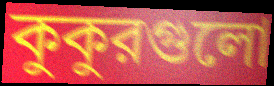
কুকুরগুলো